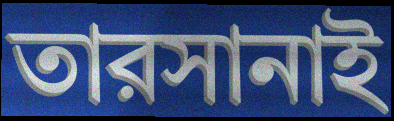
তারসানাই